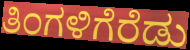
ತಿಂಗಳಿಗೆರೆಡು